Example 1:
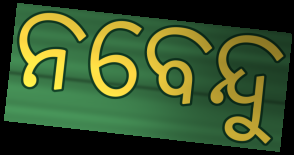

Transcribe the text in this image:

ନବେନ୍ଦୁ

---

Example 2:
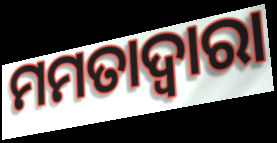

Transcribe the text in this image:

ମମତାଦ୍ୱାରା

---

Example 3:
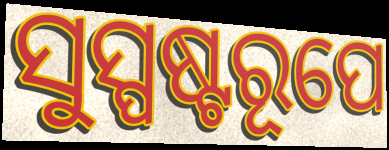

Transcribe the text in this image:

ସୁସ୍ପଷ୍ଟରୂପେ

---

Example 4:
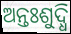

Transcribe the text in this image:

ଅନ୍ତଃଶୁଦ୍ଧି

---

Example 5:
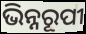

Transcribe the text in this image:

ଭିନ୍ନରୂପୀ